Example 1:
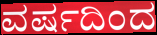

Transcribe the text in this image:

ವರ್ಷದಿಂದ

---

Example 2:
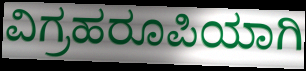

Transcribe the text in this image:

ವಿಗ್ರಹರೂಪಿಯಾಗಿ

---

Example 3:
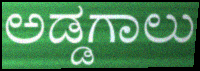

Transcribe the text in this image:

ಅಡ್ಡಗಾಲು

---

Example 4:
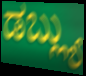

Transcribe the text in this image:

ಡಬ್ಲ್ಯು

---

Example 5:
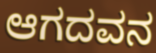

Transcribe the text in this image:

ಆಗದವನ